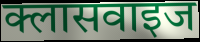
क्लासवाइज